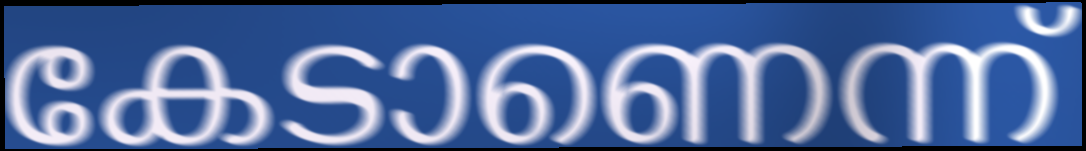
കേടാണെന്ന്